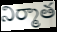
నిర్మాత